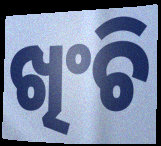
ଖିଂଚି